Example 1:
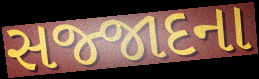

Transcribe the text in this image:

સજ્જાદના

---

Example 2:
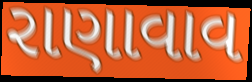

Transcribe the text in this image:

રાણાવાવ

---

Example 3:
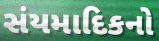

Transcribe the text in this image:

સંયમાદિકનો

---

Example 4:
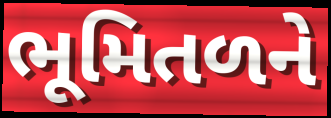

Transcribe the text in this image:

ભૂમિતળને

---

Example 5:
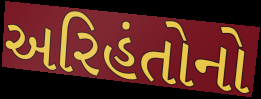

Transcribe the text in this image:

અરિહંતોનો